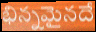
భిన్నమైనదే